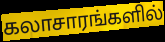
கலாசாரங்களில்